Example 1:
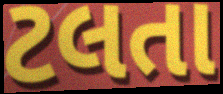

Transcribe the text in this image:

ટલતા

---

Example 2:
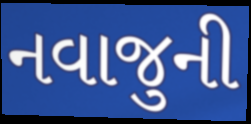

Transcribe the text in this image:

નવાજુની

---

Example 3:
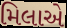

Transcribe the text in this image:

મિલાએ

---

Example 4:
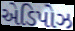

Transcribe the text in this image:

એડિપોઝ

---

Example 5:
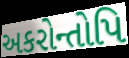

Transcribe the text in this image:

અકરોન્તોપિ